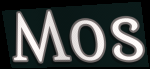
Mos